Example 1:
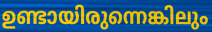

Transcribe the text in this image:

ഉണ്ടായിരുന്നെങ്കിലും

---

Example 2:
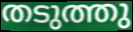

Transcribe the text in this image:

തടുത്തു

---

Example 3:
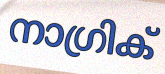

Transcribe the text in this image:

നാഗ്രിക്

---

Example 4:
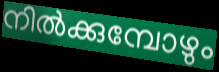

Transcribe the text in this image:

നിൽക്കുമ്പോഴും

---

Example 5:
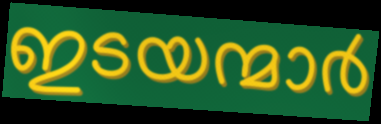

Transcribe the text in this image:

ഇടയന്മാർ